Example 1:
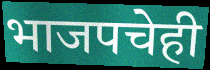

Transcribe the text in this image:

भाजपचेही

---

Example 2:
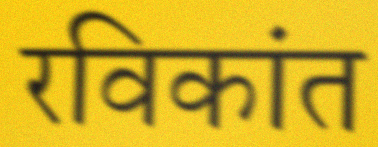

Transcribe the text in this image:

रविकांत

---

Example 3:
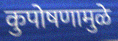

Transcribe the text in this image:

कुपोषणामुळे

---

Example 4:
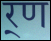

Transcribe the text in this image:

र्ण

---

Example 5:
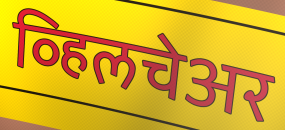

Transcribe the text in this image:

व्हिलचेअर